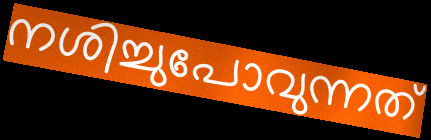
നശിച്ചുപോവുന്നത്